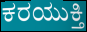
ಕರಯುಕ್ತಿ